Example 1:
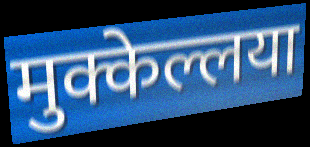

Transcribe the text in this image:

मुक्केल्लया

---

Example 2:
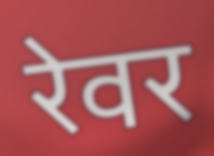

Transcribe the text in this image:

रेवर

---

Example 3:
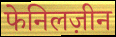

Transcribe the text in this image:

फेनिलज़ीन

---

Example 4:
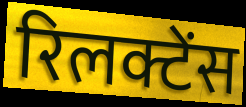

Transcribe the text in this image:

रिलक्टेंस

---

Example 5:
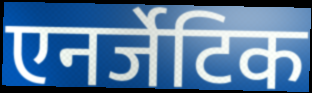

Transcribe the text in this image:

एनर्जेटिक